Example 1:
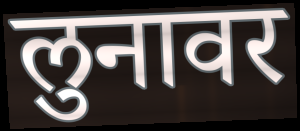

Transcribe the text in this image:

लुनावर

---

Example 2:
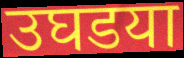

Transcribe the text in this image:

उघडया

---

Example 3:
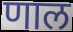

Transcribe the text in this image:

णाल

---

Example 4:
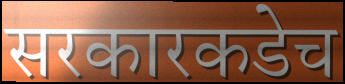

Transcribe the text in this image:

सरकारकडेच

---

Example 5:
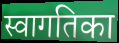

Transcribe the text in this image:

स्वागतिका